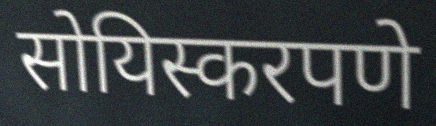
सोयिस्करपणे